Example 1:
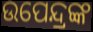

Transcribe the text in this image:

ଉପେନ୍ଦ୍ରଙ୍କ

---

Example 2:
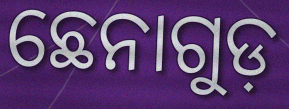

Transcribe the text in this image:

ଛେନାଗୁଡ଼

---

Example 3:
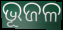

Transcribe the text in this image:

ଭୂଜଳ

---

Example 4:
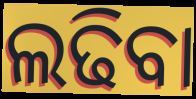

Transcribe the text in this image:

ଲଢିବା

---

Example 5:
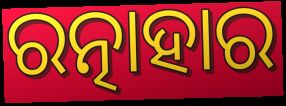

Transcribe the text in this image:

ରତ୍ନାହାର